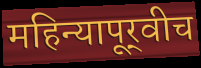
महिन्यापूर्वीच